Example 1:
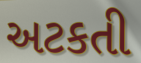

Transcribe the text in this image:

અટકતી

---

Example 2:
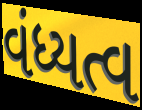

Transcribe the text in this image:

વંધ્યત્વ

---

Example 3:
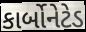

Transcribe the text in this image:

કાર્બોનેટેડ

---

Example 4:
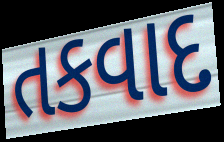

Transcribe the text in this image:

તકવાદ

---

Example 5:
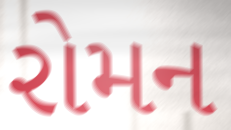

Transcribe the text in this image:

રોમન